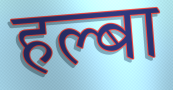
हल्बा